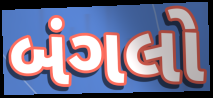
બંગલો